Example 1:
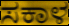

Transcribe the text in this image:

ಸಕಾಳ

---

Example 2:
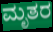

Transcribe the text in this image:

ಮೃತರ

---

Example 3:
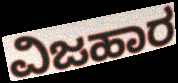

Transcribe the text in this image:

ವಿಜಹಾರ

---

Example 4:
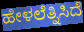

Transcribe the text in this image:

ಹೇಳಲೆತ್ನಿಸಿದೆ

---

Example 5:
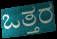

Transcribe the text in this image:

ಒತ್ತರ